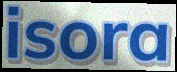
isora